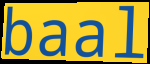
baal